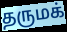
தருமக்